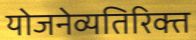
योजनेव्यतिरिक्त